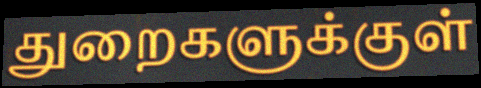
துறைகளுக்குள்